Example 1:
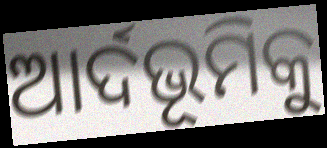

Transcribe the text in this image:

ଆର୍ଦଭୂମିକୁ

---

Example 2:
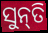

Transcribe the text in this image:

ସୁନ୍‌ତି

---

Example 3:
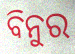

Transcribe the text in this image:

ବିନୁର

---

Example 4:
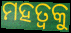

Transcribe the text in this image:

ମହତ୍ଵକୁ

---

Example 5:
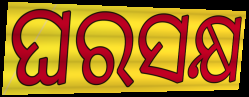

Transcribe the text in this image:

ଘରସକ୍ଷ